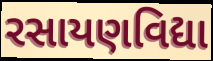
રસાયણવિદ્યા